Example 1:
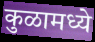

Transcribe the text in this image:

कुळामध्ये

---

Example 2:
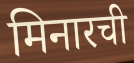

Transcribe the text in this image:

मिनारची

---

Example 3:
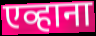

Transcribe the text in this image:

एव्हाना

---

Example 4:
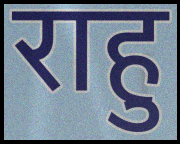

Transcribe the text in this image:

राहु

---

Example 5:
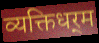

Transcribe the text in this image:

व्यक्तिधर्म